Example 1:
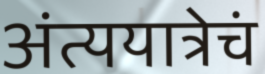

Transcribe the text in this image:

अंत्ययात्रेचं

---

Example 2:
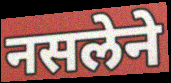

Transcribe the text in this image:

नसलेने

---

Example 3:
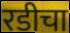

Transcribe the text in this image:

रडीचा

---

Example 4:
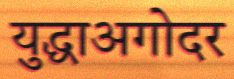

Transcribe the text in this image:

युद्धाअगोदर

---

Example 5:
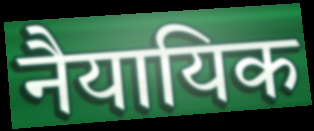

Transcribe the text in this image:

नैयायिक